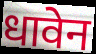
धावेन